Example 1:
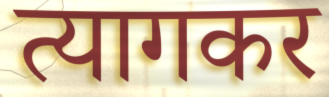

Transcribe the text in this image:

त्यागकर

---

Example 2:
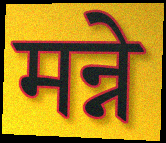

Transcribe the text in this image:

मन्ने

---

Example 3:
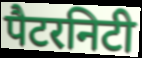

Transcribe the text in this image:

पैटरनिटी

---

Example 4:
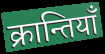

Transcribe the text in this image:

क्रान्तियाँ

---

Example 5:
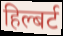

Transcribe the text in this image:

हिल्बर्ट